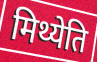
मिथ्येति